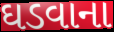
ઘડવાના